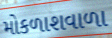
મોકળાશવાળા